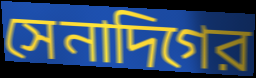
সেনাদিগের